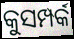
କୁସମ୍ପର୍କ